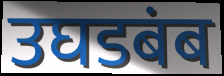
उघडबंब